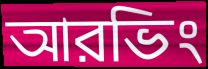
আরভিং